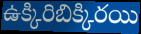
ఉక్కిరిబిక్కిరయి